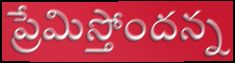
ప్రేమిస్తోందన్న